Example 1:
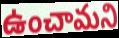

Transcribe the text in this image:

ఉంచామని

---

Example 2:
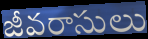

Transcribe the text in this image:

జీవరాసులు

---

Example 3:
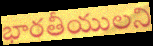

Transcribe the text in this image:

భారతీయులని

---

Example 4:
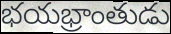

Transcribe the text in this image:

భయభ్రాంతుడు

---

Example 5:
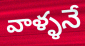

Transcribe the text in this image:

వాళ్ళనే